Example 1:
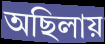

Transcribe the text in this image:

অছিলায়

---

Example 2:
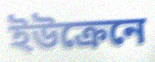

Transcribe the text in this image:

ইউক্রেনে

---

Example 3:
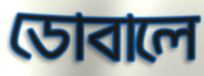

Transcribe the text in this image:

ডোবালে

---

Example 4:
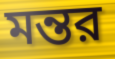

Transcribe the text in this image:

মন্তর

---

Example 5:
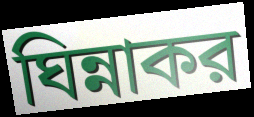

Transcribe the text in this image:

ঘিন্নাকর